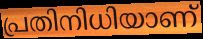
പ്രതിനിധിയാണ്